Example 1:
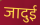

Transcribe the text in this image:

जादुई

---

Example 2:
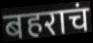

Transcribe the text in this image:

बहराचं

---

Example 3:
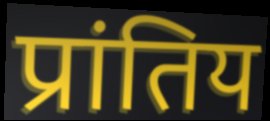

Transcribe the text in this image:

प्रांतिय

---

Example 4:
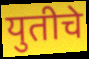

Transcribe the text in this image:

युतीचे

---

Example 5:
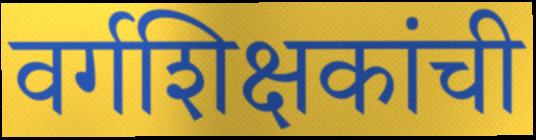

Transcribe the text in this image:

वर्गशिक्षकांची